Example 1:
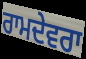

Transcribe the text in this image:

ਰਾਮਦੇਵਰਾ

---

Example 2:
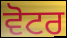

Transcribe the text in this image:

ਵੋਟਰ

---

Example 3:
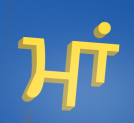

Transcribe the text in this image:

ਮਾਂ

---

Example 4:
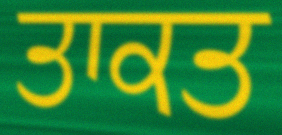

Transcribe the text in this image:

ਤਾਕਤ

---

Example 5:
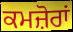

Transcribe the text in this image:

ਕਮਜ਼ੋਰਾਂ